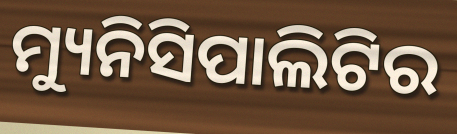
ମ୍ୟୁନିସିପାଲିଟିର